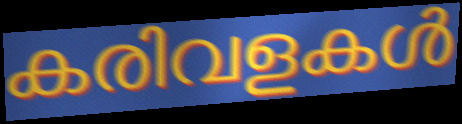
കരിവളകൾ